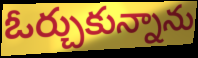
ఓర్చుకున్నాను